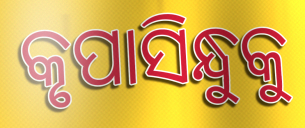
କୃପାସିନ୍ଧୁକୁ